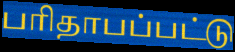
பரிதாபப்பட்டு